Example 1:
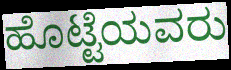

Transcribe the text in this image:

ಹೊಟ್ಟೆಯವರು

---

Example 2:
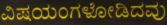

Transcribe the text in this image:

ವಿಷಯಂಗಳೋಡಿದವು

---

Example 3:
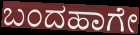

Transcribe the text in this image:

ಬಂದಹಾಗೇ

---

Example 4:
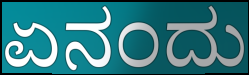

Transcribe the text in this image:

ಏನಂದು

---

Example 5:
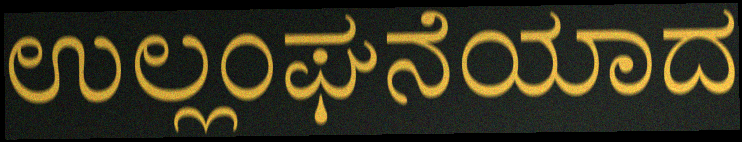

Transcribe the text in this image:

ಉಲ್ಲಂಘನೆಯಾದ